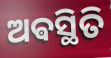
ଅଵସ୍ଥିତି